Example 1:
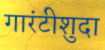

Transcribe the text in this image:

गारंटीशुदा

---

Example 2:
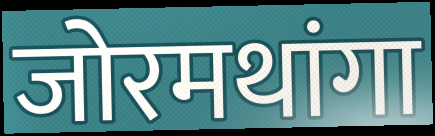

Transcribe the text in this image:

जोरमथांगा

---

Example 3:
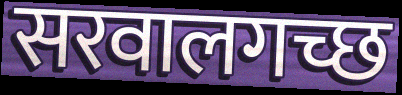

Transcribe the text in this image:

सरवालगच्छ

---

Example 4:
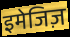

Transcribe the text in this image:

इमेजिज़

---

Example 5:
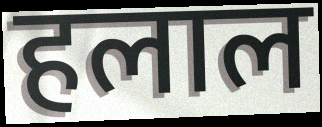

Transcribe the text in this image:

हलाल